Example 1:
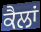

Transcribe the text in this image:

ਕੈਲਾਂ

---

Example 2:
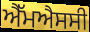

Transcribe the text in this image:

ਐੱਮਐਸਸੀ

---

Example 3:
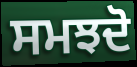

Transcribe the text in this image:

ਸਮਝਦੋ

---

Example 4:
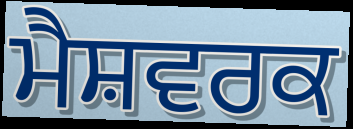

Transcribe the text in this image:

ਮੈਸ਼ਵਰਕ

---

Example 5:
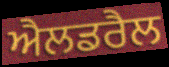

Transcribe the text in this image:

ਐਲਡਰੈਲ